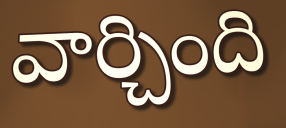
వార్చింది